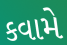
કવામે